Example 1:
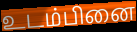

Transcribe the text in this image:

உடம்பினை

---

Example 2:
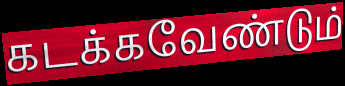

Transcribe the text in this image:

கடக்கவேண்டும்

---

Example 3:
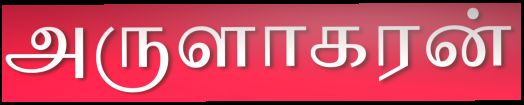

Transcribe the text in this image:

அருளாகரன்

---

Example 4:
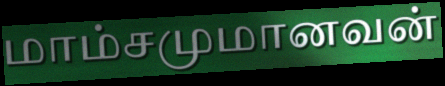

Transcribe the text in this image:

மாம்சமுமானவன்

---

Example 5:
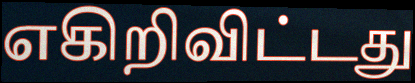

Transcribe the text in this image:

எகிறிவிட்டது